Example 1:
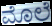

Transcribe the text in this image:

ಮೊಲೆ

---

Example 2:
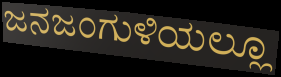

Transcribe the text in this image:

ಜನಜಂಗುಳಿಯಲ್ಲೂ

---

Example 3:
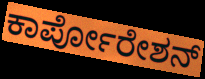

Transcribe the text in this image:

ಕಾರ್ಪೋರೇಶನ್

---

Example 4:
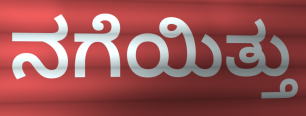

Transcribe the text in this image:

ನಗೆಯಿತ್ತು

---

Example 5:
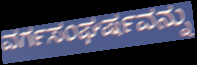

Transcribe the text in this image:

ವರ್ಗಸಂಘರ್ಷವನ್ನು